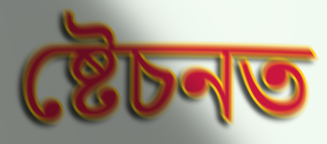
ষ্টেচনত